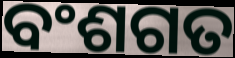
ବଂଶଗତ